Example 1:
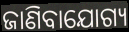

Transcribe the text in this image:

ଜାଣିବାଯୋଗ୍ୟ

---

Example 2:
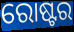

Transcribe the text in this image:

ରୋଷ୍ଟର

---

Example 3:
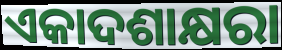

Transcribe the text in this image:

ଏକାଦଶାକ୍ଷରା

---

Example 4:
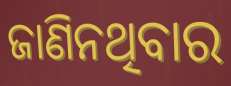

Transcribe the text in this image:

ଜାଣିନଥିବାର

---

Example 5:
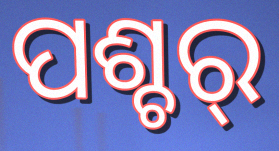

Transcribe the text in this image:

ପଶ୍ଚର୍